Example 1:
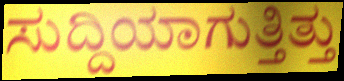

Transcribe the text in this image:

ಸುದ್ದಿಯಾಗುತ್ತಿತ್ತು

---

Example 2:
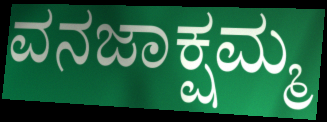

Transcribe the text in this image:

ವನಜಾಕ್ಷಮ್ಮ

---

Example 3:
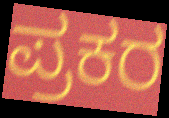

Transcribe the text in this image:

ಪ್ರಕರ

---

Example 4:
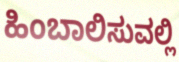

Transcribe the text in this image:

ಹಿಂಬಾಲಿಸುವಲ್ಲಿ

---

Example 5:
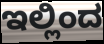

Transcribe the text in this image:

ಇಲ್ಲಿಂದ